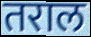
तराल